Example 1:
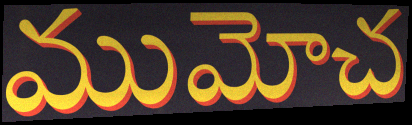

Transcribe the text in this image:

ముమోచ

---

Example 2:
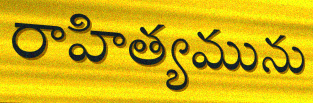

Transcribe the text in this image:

రాహిత్యమును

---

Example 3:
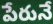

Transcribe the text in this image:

పేరునే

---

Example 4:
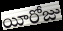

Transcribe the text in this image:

యీరోజు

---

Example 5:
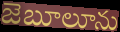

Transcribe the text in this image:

జెబూలూను